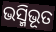
ଭସ୍ମିଭୂତ